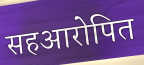
सहआरोपित